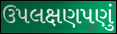
ઉપલક્ષણપણું